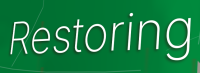
Restoring